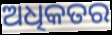
ଅଧିକତର